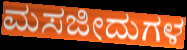
ಮಸಜೀದುಗಳ